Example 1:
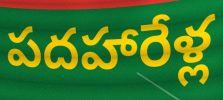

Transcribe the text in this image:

పదహారేళ్ల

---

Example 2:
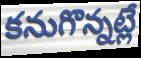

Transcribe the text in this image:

కనుగొన్నట్లే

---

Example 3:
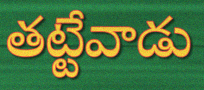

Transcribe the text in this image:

తట్టేవాడు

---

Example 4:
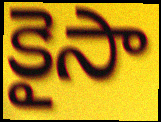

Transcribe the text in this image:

కైసా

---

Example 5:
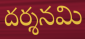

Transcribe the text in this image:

దర్శనమి